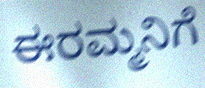
ಈರಮ್ಮನಿಗೆ